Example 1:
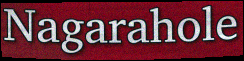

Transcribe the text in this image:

Nagarahole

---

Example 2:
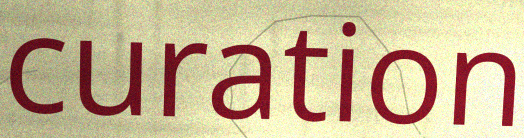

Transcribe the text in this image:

curation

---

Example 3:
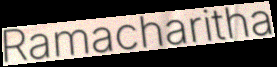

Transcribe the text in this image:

Ramacharitha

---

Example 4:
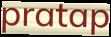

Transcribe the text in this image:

pratap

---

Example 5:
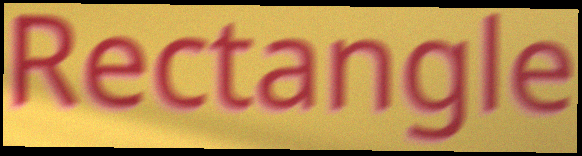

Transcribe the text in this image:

Rectangle